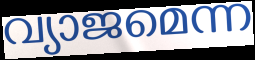
വ്യാജമെന്ന